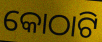
କୋଠାଟି